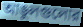
আঙুলগুলোর